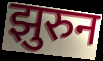
झुरुन